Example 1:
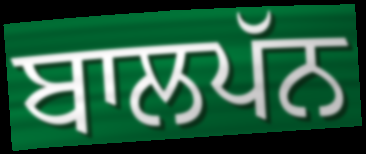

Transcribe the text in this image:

ਬਾਲਪੱਨ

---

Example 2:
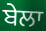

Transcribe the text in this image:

ਬੇਲਾ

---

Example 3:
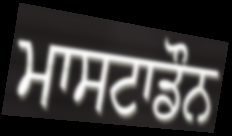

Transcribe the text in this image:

ਮਾਸਟਾਡੌਨ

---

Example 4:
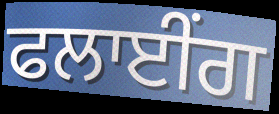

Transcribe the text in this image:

ਫਲਾਈਂਗ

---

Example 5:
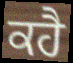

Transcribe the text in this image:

ਕਹੈ